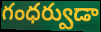
గంధర్వుడా